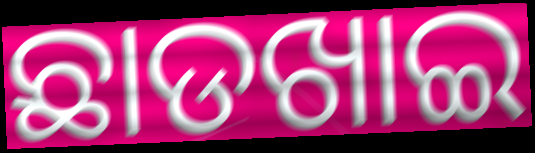
ଛାଡଖାଇ